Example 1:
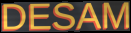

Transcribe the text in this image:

DESAM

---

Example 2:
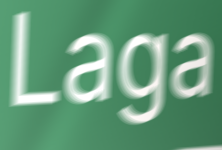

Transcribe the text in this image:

Laga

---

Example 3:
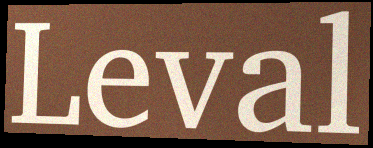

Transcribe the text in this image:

Leval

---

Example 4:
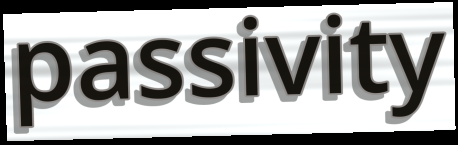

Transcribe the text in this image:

passivity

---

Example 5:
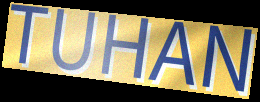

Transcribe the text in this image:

TUHAN